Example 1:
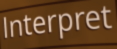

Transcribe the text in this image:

Interpret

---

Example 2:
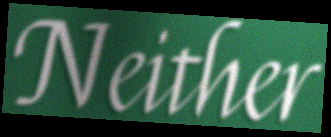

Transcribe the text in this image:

Neither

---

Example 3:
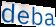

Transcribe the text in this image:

deba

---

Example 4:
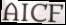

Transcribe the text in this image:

AICF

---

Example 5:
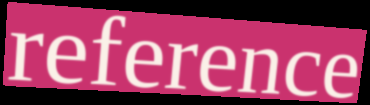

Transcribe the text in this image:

reference